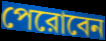
পেরোবেন